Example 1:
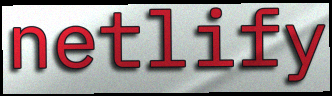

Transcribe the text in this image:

netlify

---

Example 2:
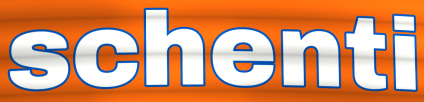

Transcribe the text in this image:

schenti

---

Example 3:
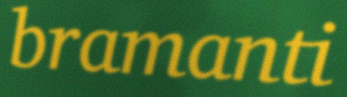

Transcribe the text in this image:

bramanti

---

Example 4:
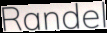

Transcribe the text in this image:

Randel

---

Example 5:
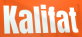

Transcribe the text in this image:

Kalifat